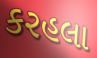
કરહલા